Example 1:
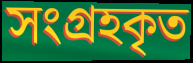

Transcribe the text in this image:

সংগ্রহকৃত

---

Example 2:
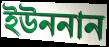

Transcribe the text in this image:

ইউননান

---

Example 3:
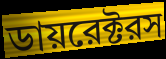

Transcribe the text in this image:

ডায়রেক্টরস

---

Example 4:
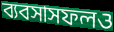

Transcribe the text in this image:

ব্যবসাসফলও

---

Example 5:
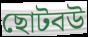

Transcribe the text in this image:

ছোটবউ